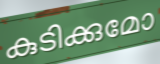
കുടിക്കുമോ